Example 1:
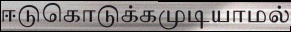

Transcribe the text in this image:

ஈடுகொடுக்கமுடியாமல்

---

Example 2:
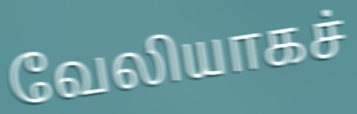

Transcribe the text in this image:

வேலியாகச்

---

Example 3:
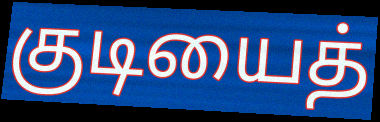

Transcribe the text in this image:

குடியைத்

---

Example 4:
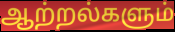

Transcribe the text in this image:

ஆற்றல்களும்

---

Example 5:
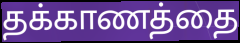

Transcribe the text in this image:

தக்காணத்தை